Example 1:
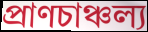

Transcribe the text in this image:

প্রাণচাঞ্চল্য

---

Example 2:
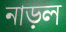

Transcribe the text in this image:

নাড়ল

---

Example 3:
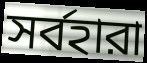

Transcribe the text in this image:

সর্বহারা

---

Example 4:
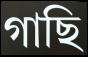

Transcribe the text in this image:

গাছি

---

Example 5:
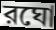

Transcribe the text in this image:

রঘো